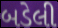
બડેલી